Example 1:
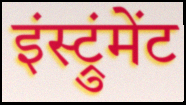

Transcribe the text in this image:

इंस्ट्रुंमेंट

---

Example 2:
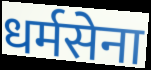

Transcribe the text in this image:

धर्मसेना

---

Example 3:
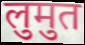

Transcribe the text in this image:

लुमुत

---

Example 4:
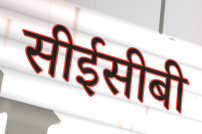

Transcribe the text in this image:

सीईसीबी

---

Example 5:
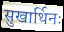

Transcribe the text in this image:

सुखार्थिनः